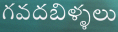
గవదబిళ్ళలు